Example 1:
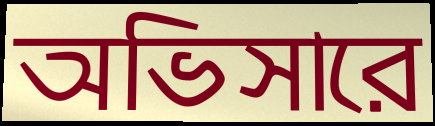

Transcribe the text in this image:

অভিসারে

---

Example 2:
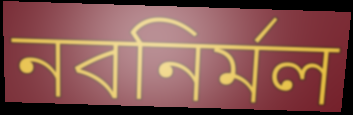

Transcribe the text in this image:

নবনির্মল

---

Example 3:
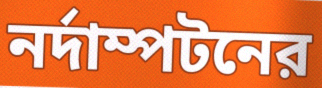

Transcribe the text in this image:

নর্দাম্পটনের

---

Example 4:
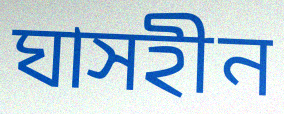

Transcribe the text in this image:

ঘাসহীন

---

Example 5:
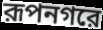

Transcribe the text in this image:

রূপনগরে